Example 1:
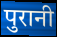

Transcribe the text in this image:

पुरानी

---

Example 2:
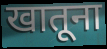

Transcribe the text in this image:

खातूना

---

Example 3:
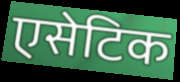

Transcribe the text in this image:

एसेटिक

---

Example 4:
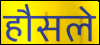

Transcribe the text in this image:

हौसले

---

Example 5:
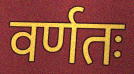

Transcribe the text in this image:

वर्णतः